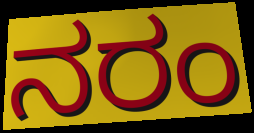
ನರಂ